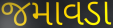
જમાવડા